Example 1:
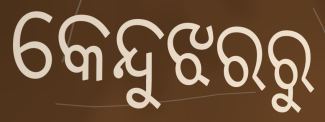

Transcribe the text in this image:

କେନ୍ଦୁଝରରୁ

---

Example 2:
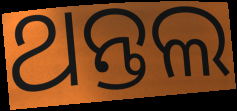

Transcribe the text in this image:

ଥନ୍ତଲ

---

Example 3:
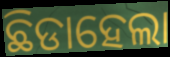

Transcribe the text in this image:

ଛିଡାହେଲା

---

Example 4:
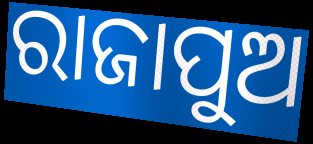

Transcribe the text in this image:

ରାଜାପୁଅ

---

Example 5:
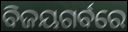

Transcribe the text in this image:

ବିଜୟଗର୍ବରେ